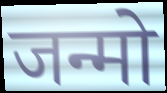
जन्मो